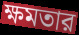
ক্ষমতার